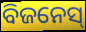
ବିଜନେସ୍